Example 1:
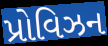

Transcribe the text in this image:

પ્રોવિઝન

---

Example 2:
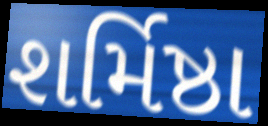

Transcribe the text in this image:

શર્મિષ્ઠા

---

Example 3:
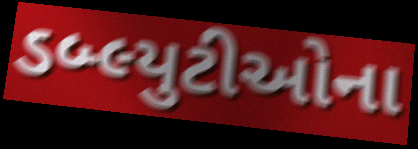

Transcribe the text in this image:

ડબ્લ્યુટીઓના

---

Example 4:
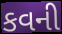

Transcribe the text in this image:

કવની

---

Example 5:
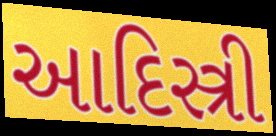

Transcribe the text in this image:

આદિસ્ત્રી